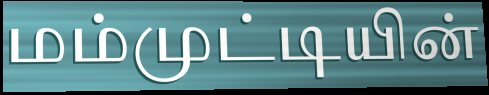
மம்முட்டியின்